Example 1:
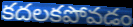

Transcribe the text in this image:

కదలకపోవడం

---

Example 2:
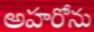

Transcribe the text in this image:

అహరోను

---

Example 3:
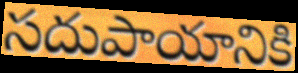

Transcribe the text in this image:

సదుపాయానికి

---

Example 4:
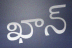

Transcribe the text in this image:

ఖాన్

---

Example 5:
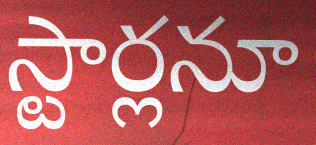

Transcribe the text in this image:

స్టార్లనూ